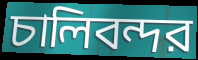
চালিবন্দর